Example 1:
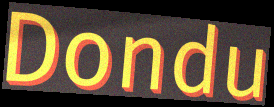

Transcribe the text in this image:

Dondu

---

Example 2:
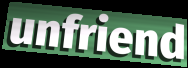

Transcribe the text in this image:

unfriend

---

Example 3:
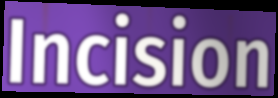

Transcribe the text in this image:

Incision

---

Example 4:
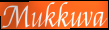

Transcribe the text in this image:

Mukkuva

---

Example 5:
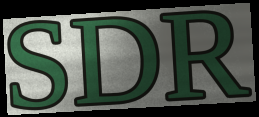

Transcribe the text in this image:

SDR